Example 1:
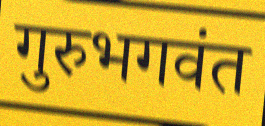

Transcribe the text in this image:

गुरुभगवंत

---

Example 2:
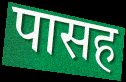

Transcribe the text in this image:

पासह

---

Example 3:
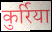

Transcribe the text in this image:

कुर्रिया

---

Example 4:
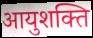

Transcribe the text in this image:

आयुशक्ति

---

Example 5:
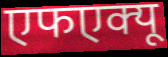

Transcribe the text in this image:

एफएक्यू